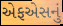
એફએસનું